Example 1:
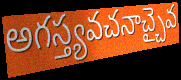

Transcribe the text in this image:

అగస్త్యవచనాచ్చైవ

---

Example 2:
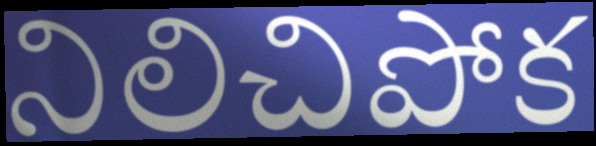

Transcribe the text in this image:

నిలిచిపోక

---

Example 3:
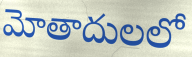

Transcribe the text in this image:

మోతాదులలో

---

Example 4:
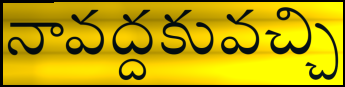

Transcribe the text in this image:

నావద్దకువచ్చి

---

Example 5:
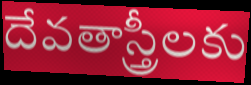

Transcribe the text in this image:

దేవతాస్త్రీలకు